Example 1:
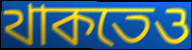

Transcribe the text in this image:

থাকতেও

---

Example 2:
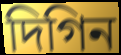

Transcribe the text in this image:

দিগিন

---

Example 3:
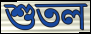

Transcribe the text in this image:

শুতল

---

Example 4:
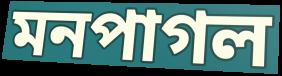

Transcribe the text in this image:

মনপাগল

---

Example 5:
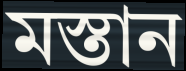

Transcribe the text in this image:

মস্তান